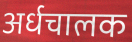
अर्धचालक